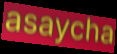
asaycha